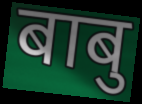
बाबु